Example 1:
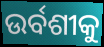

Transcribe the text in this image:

ଉର୍ବଶୀକୁ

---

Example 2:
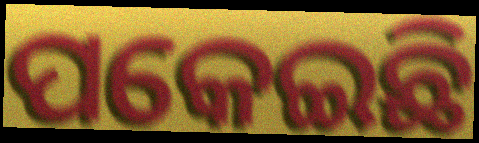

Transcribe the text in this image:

ପକେଇଛି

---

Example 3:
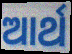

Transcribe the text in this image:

ଆର୍ଥ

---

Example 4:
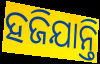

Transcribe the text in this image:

ହଜିଯାନ୍ତି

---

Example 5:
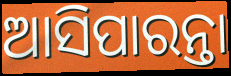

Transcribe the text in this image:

ଆସିପାରନ୍ତା